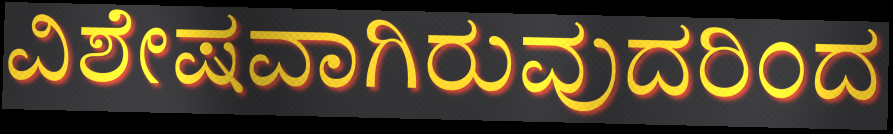
ವಿಶೇಷವಾಗಿರುವುದರಿಂದ